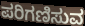
ಪರಿಗಣಿಸುವ